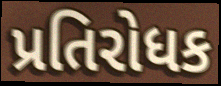
પ્રતિરોધક